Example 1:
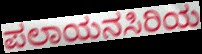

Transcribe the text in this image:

ಪಲಾಯನಸಿರಿಯ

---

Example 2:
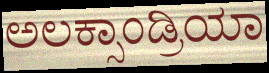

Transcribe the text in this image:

ಅಲಕ್ಸಾಂಡ್ರಿಯಾ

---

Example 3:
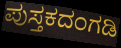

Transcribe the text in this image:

ಪುಸ್ತಕದಂಗಡಿ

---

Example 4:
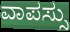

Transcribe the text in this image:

ವಾಪಸ್ಸು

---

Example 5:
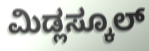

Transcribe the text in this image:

ಮಿಡ್ಲಸ್ಕೂಲ್